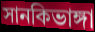
সানকিভাঙ্গা